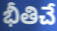
భీతిచే